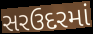
સરઉદરમાં